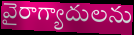
వైరాగ్యాదులను